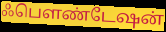
ஃபௌண்டேஷன்